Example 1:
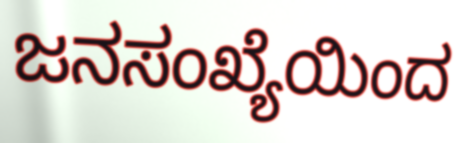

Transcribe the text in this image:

ಜನಸಂಖ್ಯೆಯಿಂದ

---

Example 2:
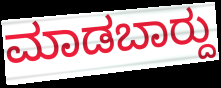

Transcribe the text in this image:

ಮಾಡಬಾರ್‍ದು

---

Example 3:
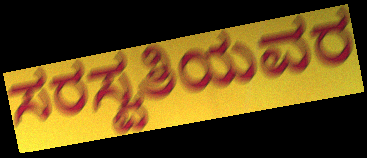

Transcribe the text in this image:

ಸರಸ್ವತಿಯವರ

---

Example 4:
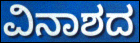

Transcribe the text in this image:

ವಿನಾಶದ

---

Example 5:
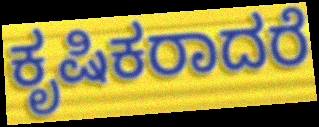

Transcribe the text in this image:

ಕೃಷಿಕರಾದರೆ